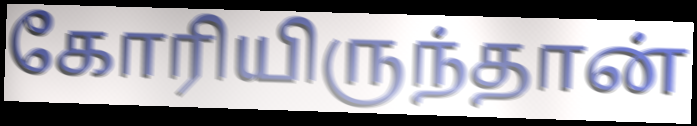
கோரியிருந்தான்